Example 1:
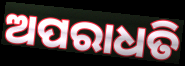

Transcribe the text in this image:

ଅପରାଧତି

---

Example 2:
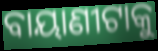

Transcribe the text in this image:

ବାୟାଣୀଟାକୁ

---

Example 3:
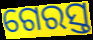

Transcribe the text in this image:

ଗେରସ୍ତ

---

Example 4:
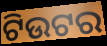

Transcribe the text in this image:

ଟିଉଟର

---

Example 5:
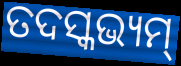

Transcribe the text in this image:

ତଦସ୍କଭ୍ୟମ୍